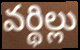
వర్థిల్లు